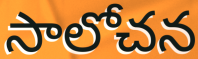
సాలోచన